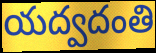
యద్వదంతి